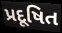
પ્રદૂષિત